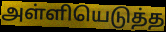
அள்ளியெடுத்த